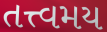
તત્ત્વમય